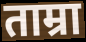
ताम्रा